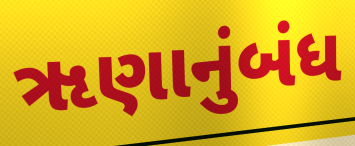
ૠણાનુંબંધ